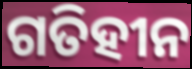
ଗତିହୀନ